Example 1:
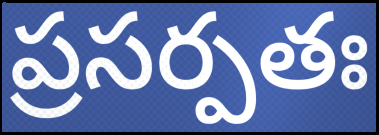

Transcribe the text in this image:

ప్రసర్పతః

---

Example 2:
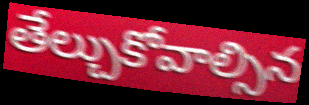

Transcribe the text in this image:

తేల్చుకోవాల్సిన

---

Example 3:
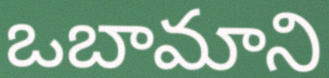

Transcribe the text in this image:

ఒబామాని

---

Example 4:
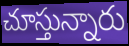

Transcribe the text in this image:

చూస్తున్నారు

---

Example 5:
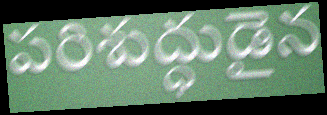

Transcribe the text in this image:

పరిశుద్ధుడైన